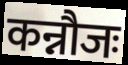
कन्नौजः